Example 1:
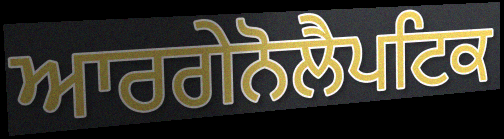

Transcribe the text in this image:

ਆਰਗੇਨੋਲੈਪਟਿਕ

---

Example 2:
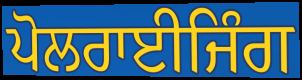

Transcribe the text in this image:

ਪੋਲਰਾਈਜਿੰਗ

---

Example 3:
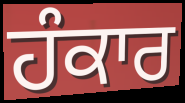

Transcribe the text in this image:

ਹੰਕਾਰ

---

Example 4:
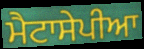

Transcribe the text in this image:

ਮੈਟਾਸੇਪੀਆ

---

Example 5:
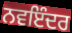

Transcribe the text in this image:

ਨਵਇੰਦਰ